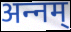
अन्नम्